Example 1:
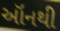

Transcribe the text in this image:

ઑનથી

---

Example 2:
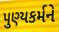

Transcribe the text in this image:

પુણ્યકર્મને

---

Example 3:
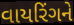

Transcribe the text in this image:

વાયરિંગને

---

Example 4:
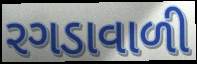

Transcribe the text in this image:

રગડાવાળી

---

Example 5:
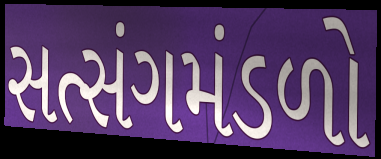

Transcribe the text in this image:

સત્સંગમંડળો